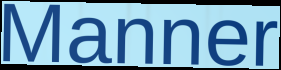
Manner